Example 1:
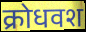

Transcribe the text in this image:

क्रोधवश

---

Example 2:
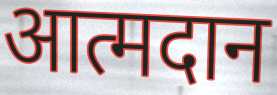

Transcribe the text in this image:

आत्मदान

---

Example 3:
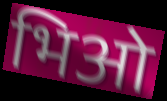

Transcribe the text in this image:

भिओ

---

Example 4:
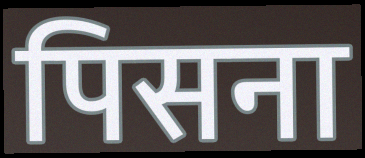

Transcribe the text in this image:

पिसना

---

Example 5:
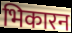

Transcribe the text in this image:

भिकारन